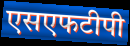
एसएफटीपी